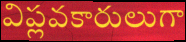
విప్లవకారులుగా